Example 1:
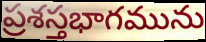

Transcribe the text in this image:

ప్రశస్తభాగమును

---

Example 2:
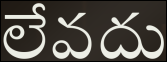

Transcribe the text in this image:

లేవదు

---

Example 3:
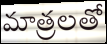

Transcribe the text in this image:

మాత్రలతో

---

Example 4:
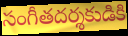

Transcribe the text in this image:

సంగీతదర్శకుడికి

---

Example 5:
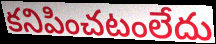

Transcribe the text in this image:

కనిపించటంలేదు